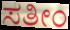
ಸತೀಂ